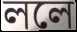
ললে